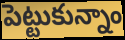
పెట్టుకున్నాం